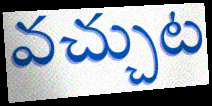
వచ్చుట